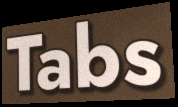
Tabs